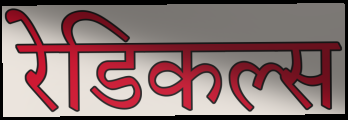
रेडिकल्स